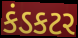
કંડકટર